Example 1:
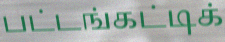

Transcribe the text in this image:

பட்டங்கட்டிக்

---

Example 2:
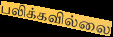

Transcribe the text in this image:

பலிக்கவில்லை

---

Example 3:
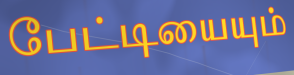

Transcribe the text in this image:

பேட்டியையும்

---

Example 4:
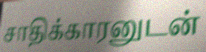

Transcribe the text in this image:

சாதிக்காரனுடன்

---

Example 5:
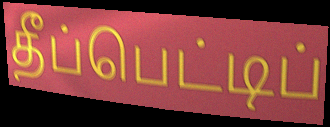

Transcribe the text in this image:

தீப்பெட்டிப்